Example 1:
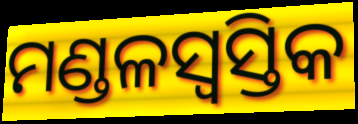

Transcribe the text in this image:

ମଣ୍ଡଳସ୍ୱସ୍ତିକ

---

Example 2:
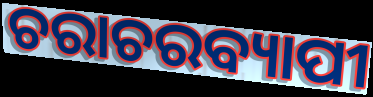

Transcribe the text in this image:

ଚରାଚରବ୍ୟାପୀ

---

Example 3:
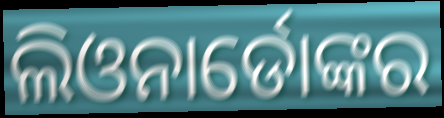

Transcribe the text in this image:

ଲିଓନାର୍ଡୋଙ୍କର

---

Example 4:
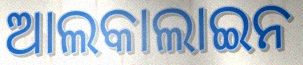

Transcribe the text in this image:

ଆଲକାଲାଇନ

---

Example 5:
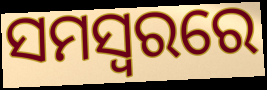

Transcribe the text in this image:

ସମସ୍ବରରେ